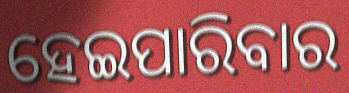
ହେଇପାରିବାର